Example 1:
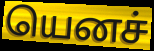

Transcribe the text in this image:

யெனச்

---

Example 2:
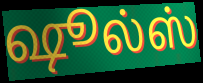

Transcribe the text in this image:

ஷூல்ஸ்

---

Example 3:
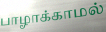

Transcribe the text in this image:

பாழாக்காமல்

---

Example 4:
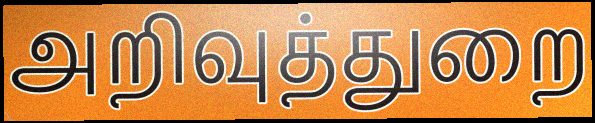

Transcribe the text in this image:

அறிவுத்துறை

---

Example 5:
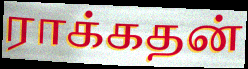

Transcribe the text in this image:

ராக்கதன்